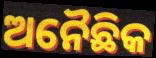
ଅନୈଛିକ